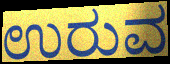
ಉರುವ